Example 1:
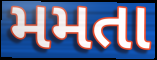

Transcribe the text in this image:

મમતા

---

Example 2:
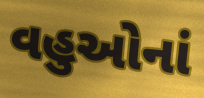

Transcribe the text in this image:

વહુઓનાં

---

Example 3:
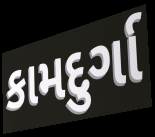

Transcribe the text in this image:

કામદુર્ગા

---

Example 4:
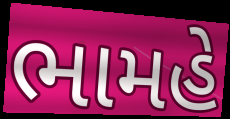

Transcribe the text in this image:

ભામહે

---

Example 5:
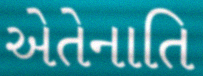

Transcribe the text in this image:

એતેનાતિ